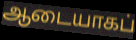
ஆடையாகப்